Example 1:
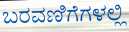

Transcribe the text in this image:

ಬರವಣಿಗೆಗಳಲ್ಲಿ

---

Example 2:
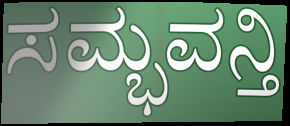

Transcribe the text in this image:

ಸಮ್ಭವನ್ತಿ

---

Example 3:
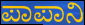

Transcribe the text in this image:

ಪಾಪಾನಿ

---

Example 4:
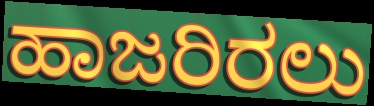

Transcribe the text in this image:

ಹಾಜರಿರಲು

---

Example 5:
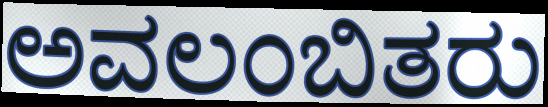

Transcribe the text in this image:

ಅವಲಂಬಿತರು